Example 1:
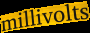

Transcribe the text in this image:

millivolts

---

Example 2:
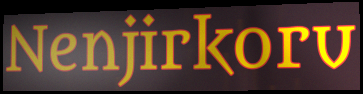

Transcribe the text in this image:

Nenjirkoru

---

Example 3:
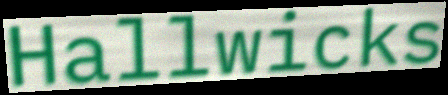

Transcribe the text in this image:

Hallwicks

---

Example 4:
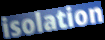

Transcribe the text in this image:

isolation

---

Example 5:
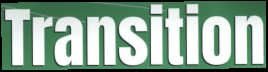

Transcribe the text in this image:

Transition